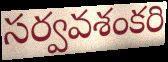
సర్వవశంకరి